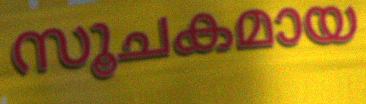
സൂചകമായ